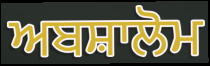
ਅਬਸ਼ਾਲੋਮ